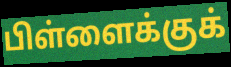
பிள்ளைக்குக்